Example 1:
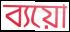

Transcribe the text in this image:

ব্যয়ো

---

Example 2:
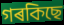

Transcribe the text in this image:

গৰকিছে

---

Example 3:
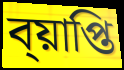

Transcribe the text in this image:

ব্য়াপ্তি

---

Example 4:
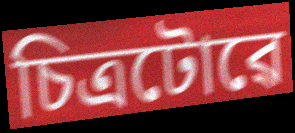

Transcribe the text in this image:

চিত্ৰটোৱে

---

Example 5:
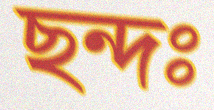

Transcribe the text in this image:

ছন্দঃ